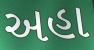
અહા